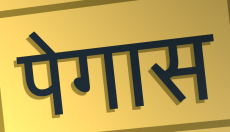
पेगास